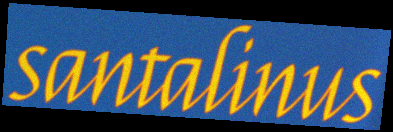
santalinus